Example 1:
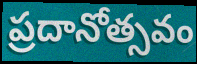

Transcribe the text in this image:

ప్రదానోత్సవం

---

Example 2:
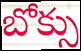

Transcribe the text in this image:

బోక్సు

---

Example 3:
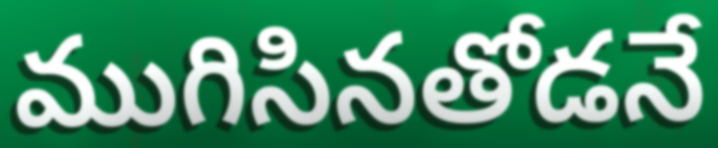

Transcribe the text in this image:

ముగిసినతోడనే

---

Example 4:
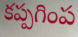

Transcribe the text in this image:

కప్పగింప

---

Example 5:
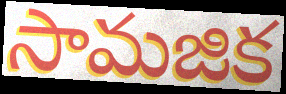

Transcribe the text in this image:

సామజిక